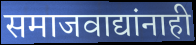
समाजवाद्यांनाही